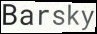
Barsky